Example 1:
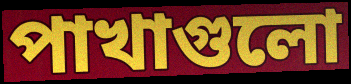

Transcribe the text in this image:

পাখাগুলো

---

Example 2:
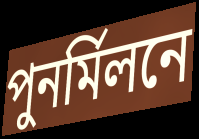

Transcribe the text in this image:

পুনর্মিলনে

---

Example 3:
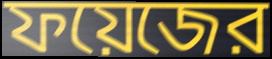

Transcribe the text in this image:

ফয়েজের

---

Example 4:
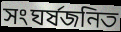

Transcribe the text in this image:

সংঘর্ষজনিত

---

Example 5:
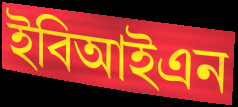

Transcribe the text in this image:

ইবিআইএন